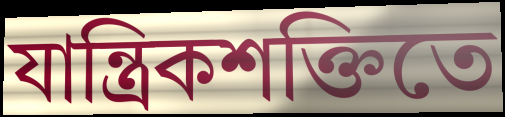
যান্ত্রিকশক্তিতে